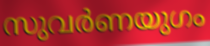
സുവർണയുഗം